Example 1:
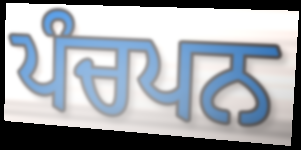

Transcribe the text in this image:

ਪੰਚਪਨ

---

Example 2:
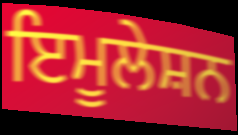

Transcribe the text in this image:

ਇਮੂਲੇਸ਼ਨ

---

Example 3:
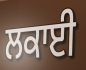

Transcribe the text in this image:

ਲਕਾਈ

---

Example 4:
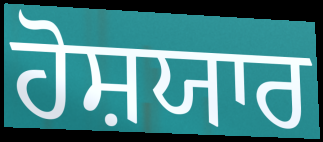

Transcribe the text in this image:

ਹੋਸ਼ਯਾਰ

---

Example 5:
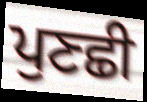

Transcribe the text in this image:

ਪੁਣਛੀ